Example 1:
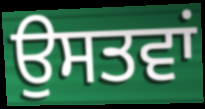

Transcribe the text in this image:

ਉਸਤਵਾਂ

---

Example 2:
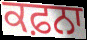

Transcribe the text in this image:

ਕਫ਼ਨਾ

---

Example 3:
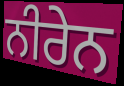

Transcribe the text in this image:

ਨੀਰੇਨ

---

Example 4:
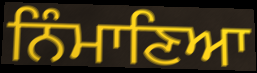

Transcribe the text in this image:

ਨਿੰਮਾਣਿਆ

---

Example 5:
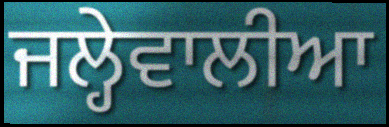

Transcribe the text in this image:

ਜਲ੍ਹੇਵਾਲੀਆ